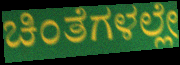
ಚಿಂತೆಗಳಲ್ಲೇ